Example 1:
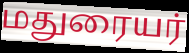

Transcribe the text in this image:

மதுரையர்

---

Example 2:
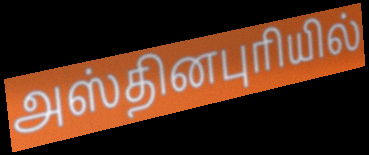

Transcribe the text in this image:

அஸ்தினபுரியில்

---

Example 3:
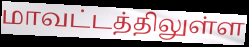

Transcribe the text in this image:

மாவட்டத்திலுள்ள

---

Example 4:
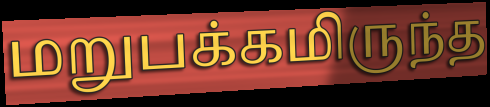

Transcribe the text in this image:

மறுபக்கமிருந்த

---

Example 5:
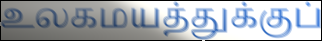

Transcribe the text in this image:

உலகமயத்துக்குப்